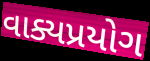
વાક્યપ્રયોગ